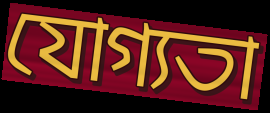
যোগ্যতা